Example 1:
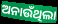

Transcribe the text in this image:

ଅନାଉଁଥିଲା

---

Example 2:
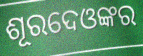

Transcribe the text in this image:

ଶୂରଦେଓଙ୍କର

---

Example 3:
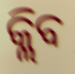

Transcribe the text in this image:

କ୍ଲିବ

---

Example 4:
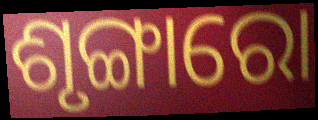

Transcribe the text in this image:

ଶୃଙ୍ଗାରୋ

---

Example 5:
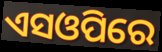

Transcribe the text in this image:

ଏସଓପିରେ